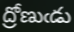
ద్రోణుఁడు